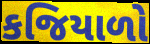
કજિયાળો